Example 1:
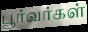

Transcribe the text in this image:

பூர்வர்கள்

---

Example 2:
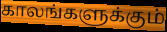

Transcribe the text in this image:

காலங்களுக்கும்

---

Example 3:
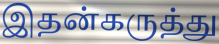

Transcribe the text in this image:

இதன்கருத்து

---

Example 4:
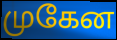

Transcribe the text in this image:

முகேன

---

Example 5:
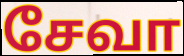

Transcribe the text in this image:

சேவா